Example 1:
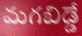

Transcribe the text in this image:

మగబిడ్డే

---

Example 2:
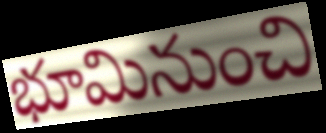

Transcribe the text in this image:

భూమినుంచి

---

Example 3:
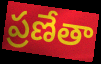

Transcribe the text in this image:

ప్రణేతా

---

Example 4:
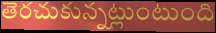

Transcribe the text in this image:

తెరచుకున్నట్లుంటుంది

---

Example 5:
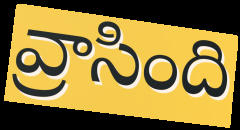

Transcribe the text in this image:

వ్రాసింది